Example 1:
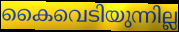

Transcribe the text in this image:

കൈവെടിയുന്നില്ല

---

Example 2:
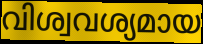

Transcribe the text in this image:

വിശ്വവശ്യമായ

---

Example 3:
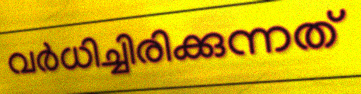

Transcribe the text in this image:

വർധിച്ചിരിക്കുന്നത്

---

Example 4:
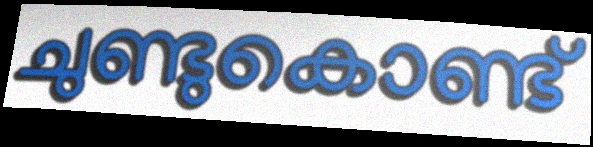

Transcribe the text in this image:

ചുണ്ടുകൊണ്ട്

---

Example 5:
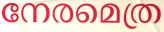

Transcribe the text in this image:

നേരമെത്ര